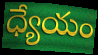
ధ్యేయం